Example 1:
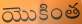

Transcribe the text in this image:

యొకింత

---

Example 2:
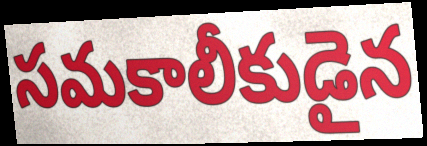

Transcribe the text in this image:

సమకాలీకుడైన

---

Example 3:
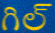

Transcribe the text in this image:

గిల్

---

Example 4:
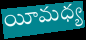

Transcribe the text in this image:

యీమధ్య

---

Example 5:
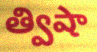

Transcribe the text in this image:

త్విషా